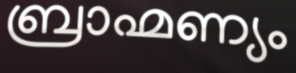
ബ്രാഹ്മണ്യം